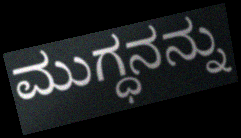
ಮುಗ್ಧನನ್ನು